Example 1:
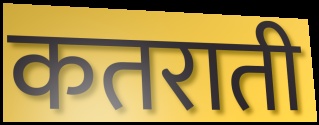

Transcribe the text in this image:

कतराती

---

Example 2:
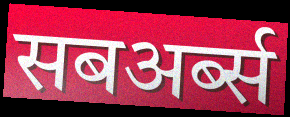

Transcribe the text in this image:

सबअर्ब्स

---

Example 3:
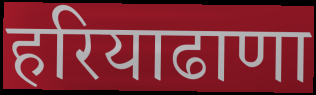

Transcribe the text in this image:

हरियाढाणा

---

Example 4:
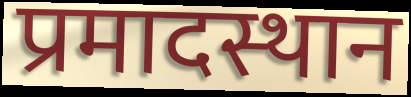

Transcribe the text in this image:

प्रमादस्थान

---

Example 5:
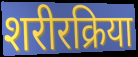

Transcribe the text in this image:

शरीरक्रिया